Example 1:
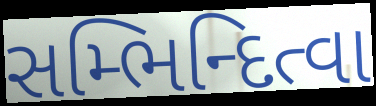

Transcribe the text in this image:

સમ્ભિન્દિત્વા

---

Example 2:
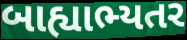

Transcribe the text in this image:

બાહ્યાભ્યતર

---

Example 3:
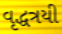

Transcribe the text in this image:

વૃદ્ધત્રયી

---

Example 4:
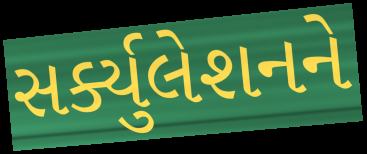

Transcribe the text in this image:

સર્ક્યુલેશનને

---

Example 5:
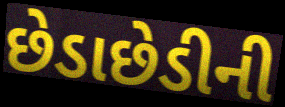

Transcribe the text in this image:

છેડાછેડીની